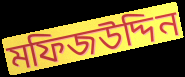
মফিজউদ্দিন